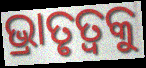
ଭ୍ରାତୃତ୍ୱକୁ